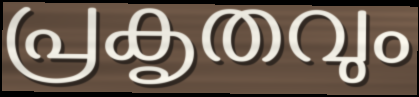
പ്രകൃതവും